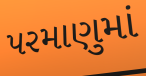
પરમાણુમાં